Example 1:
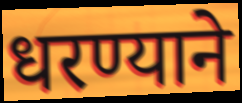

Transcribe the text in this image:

धरण्याने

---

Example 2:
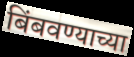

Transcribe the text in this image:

बिंबवण्याच्या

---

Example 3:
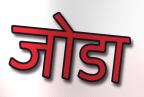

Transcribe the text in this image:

जोडा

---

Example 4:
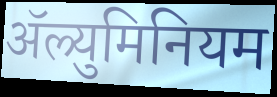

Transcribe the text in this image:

ॲल्युमिनियम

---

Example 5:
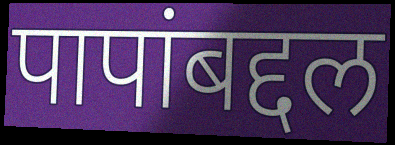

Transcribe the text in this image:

पापांबद्दल